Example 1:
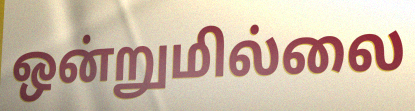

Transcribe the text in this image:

ஒன்றுமில்லை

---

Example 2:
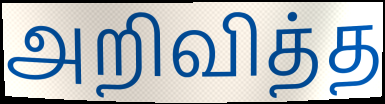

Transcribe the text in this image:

அறிவித்த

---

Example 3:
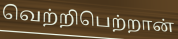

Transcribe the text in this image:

வெற்றிபெற்றான்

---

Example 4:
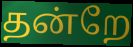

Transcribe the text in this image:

தன்றே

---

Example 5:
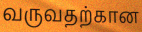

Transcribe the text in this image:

வருவதற்கான